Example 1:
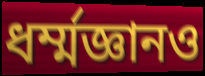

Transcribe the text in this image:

ধর্ম্মজ্ঞানও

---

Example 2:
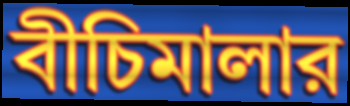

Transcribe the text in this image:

বীচিমালার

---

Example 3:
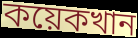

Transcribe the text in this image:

কয়েকখান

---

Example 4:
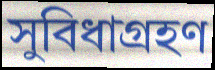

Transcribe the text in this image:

সুবিধাগ্রহণ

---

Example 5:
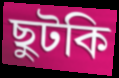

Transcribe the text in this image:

ছুটকি